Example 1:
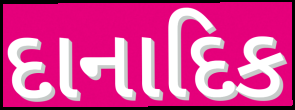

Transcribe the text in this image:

દાનાદિક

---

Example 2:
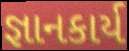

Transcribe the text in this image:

જ્ઞાનકાર્ય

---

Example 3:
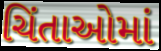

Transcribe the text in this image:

ચિંતાઓમાં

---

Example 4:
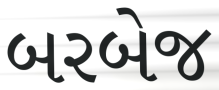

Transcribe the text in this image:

બરબેજ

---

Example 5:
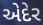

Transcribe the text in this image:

એદેર